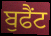
ਬੁਫੈਂਟ